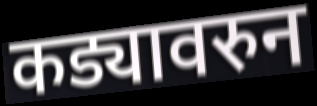
कड्यावरुन